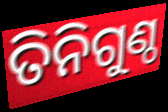
ତିନିଗୁଣ୍ଠ